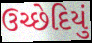
ઉચ્છેદિયું